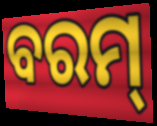
ବରମ୍